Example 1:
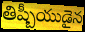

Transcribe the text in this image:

తిష్బీయుడైన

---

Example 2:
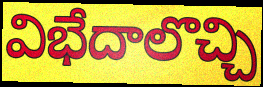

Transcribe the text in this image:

విభేదాలొచ్చి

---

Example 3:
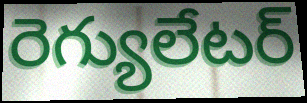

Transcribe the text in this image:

రెగ్యులేటర్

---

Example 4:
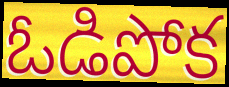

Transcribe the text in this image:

ఓడిపోక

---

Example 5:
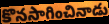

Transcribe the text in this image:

కొనసాగించినాడు